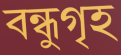
বন্ধুগৃহ